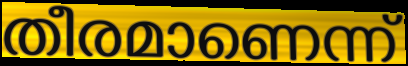
തീരമാണെന്ന്